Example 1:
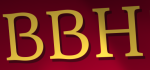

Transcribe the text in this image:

BBH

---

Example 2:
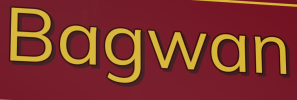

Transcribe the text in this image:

Bagwan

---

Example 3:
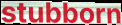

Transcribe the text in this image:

stubborn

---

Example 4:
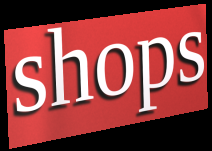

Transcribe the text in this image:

shops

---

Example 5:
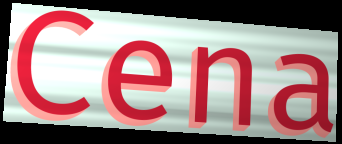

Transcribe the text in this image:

Cena